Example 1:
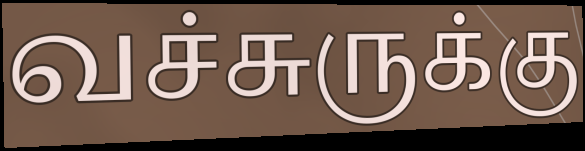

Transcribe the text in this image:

வச்சுருக்கு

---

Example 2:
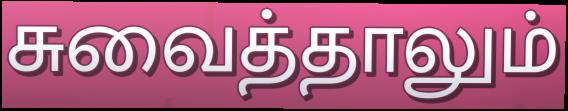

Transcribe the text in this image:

சுவைத்தாலும்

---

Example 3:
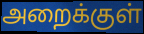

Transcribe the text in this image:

அறைக்குள்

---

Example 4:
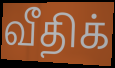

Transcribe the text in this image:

வீதிக்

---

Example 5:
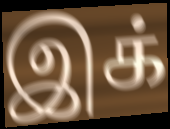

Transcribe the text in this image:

இக்